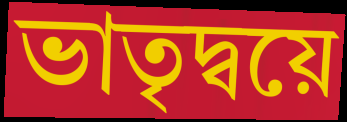
ভাতৃদ্বয়ে